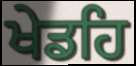
ਖੇਡਹਿ